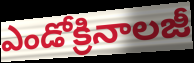
ఎండోక్రినాలజీ